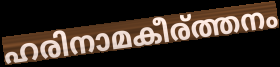
ഹരിനാമകീര്ത്തനം